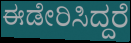
ಈಡೇರಿಸಿದ್ದರೆ